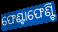
ଫେଣ୍ଟାଫେଣ୍ଟି